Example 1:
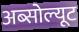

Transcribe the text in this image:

अब्सोल्यूट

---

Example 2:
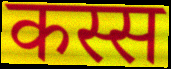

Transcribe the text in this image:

कस्स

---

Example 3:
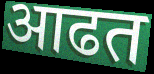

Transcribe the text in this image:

आढत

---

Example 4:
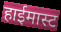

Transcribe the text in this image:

हाईमास्ट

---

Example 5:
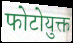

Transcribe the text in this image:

फोटोयुक्त